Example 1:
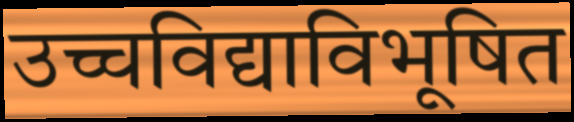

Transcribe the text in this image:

उच्चविद्याविभूषित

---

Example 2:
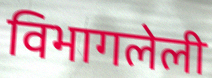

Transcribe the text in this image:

विभागलेली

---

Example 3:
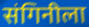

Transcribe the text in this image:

संगिनीला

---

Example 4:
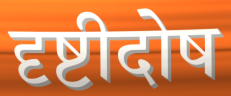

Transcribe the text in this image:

दृष्टीदोष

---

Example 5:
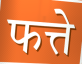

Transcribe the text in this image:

फत्ते